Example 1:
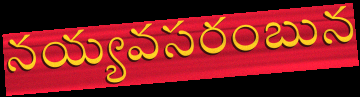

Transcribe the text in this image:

నయ్యవసరంబున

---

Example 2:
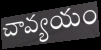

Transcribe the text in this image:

చావ్యయం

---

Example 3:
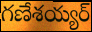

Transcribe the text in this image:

గణేశయ్యర్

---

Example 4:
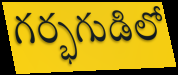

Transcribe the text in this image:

గర్భగుడిలో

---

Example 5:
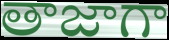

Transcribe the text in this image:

తాజాగా